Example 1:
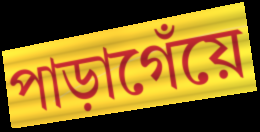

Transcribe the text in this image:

পাড়াগেঁয়ে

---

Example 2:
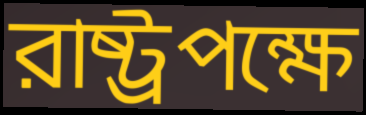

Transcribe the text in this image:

রাষ্ট্রপক্ষে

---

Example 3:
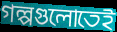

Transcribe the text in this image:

গল্পগুলোতেই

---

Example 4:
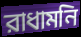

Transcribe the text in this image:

রাধামনি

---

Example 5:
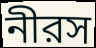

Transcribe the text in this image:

নীরস